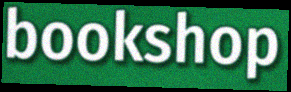
bookshop